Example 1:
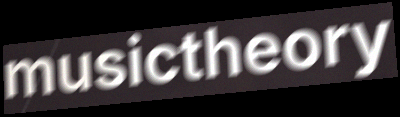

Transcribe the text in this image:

musictheory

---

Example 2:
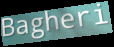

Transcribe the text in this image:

Bagheri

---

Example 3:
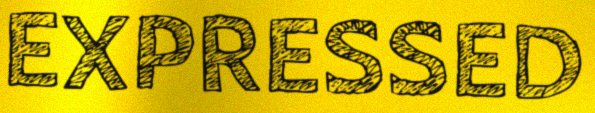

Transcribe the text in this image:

EXPRESSED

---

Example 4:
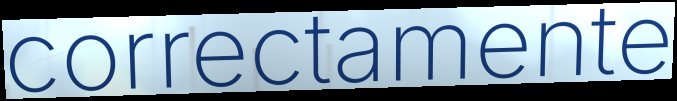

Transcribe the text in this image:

correctamente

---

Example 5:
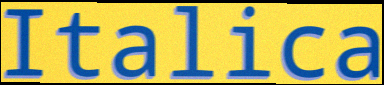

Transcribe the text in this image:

Italica